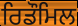
ਰਿਡੌਮਿਲ